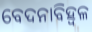
ବେଦନାବିହ୍ୱଳ